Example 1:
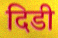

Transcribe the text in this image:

दिडी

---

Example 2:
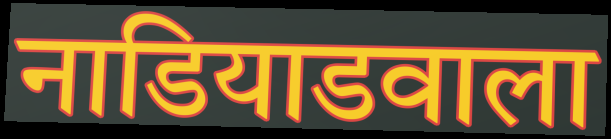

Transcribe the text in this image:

नाडियाडवाला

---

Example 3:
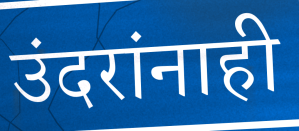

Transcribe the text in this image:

उंदरांनाही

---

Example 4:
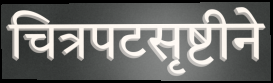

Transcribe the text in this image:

चित्रपटसृष्टीने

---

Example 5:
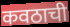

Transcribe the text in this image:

कवठाची